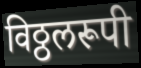
विठ्ठलरूपी